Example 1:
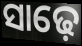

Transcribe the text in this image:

ସାଢ଼େ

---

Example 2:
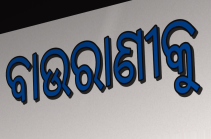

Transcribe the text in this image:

ବାଉରାଣୀକୁ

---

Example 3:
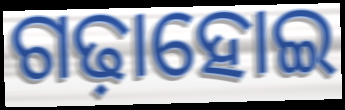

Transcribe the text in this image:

ଗଢ଼ାହୋଇ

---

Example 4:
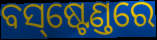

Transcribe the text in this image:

ବସ୍‌ଷ୍ଟେଣ୍ଡରେ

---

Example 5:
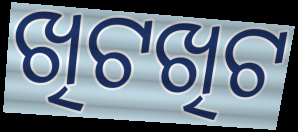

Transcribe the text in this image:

ଖିଟଖିଟ